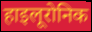
हाइलूरोनिक